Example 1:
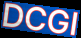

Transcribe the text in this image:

DCGI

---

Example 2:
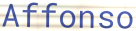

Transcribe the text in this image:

Affonso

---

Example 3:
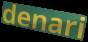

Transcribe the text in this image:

denari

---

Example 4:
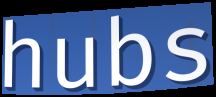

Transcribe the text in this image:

hubs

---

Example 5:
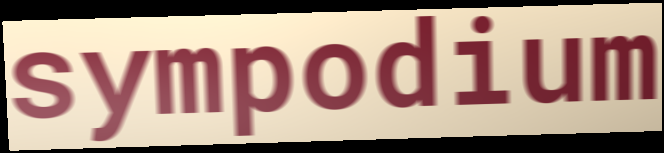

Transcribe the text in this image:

sympodium